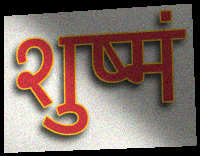
शुष्मं